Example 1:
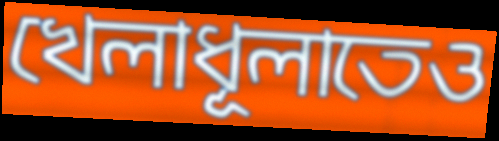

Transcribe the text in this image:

খেলাধূলাতেও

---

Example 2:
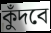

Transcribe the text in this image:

কুঁদবে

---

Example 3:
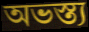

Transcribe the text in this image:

অভস্ত্য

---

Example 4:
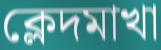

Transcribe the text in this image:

ক্লেদমাখা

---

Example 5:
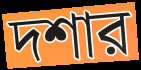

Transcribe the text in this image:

দশার